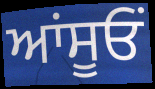
ਆਂਸੂਓਂ